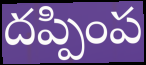
దప్పింప